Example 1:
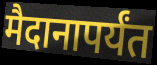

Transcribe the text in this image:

मैदानापर्यंत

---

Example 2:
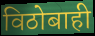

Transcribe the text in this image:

विठोबाही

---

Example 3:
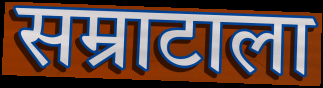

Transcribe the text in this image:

सम्राटाला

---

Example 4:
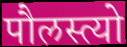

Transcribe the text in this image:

पौलस्त्यो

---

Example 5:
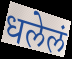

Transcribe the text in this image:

धलेलं